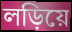
লড়িয়ে